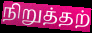
நிறுத்தற்